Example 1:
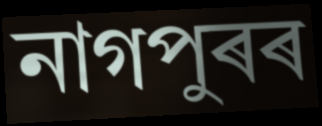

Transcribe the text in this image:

নাগপুৰৰ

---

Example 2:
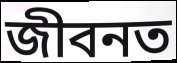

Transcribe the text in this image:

জীবনত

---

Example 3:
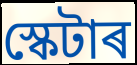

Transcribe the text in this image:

স্কেটাৰ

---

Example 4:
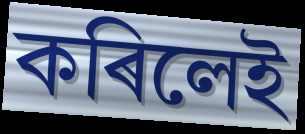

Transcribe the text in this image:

কৰিলেই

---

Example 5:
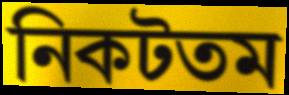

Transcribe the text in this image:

নিকটতম